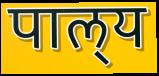
पाल्य